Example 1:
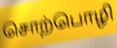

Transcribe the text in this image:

சொற்பொழி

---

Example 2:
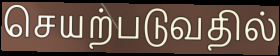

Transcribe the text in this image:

செயற்படுவதில்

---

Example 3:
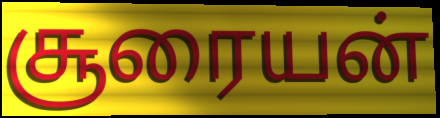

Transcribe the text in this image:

சூரையன்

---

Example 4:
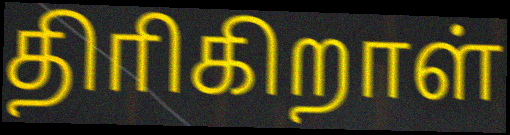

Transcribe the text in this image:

திரிகிறாள்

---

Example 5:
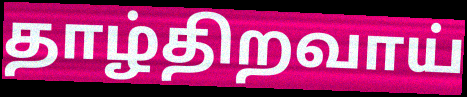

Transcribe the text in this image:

தாழ்திறவாய்